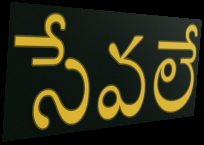
సేవలే